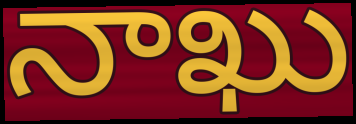
నాఖు